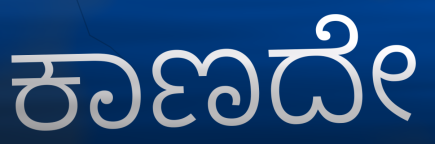
ಕಾಣದೇ